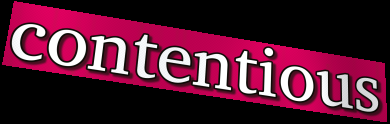
contentious